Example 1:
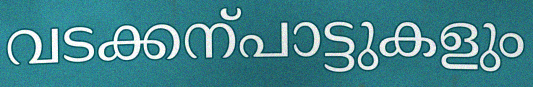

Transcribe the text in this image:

വടക്കന്പാട്ടുകളും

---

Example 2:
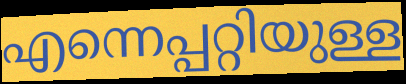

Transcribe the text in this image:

എന്നെപ്പറ്റിയുള്ള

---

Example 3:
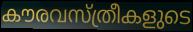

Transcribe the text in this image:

കൗരവസ്ത്രീകളുടെ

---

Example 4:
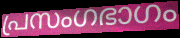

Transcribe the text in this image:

പ്രസംഗഭാഗം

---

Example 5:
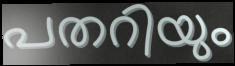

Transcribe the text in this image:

പതറിയും